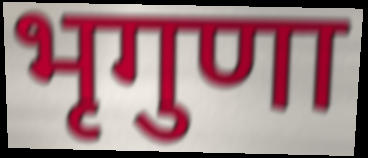
भृगुणा